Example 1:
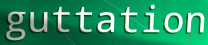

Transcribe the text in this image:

guttation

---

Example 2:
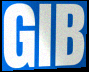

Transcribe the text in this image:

GIB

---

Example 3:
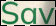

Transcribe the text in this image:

Sav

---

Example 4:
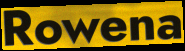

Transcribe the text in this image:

Rowena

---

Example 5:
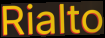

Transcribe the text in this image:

Rialto